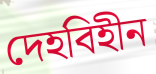
দেহবিহীন